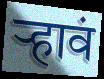
र्‍हावं